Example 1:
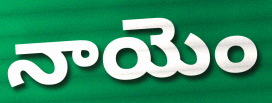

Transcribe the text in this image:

నాయెం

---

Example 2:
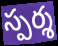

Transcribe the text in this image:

స్పర్శ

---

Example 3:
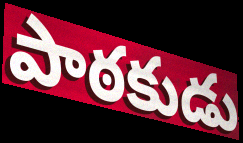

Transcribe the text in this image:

పాఠకుడు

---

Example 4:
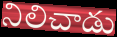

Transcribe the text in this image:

నిలిచాడు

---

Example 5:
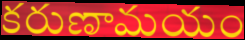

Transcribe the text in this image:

కరుణామయం